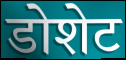
डोशेट